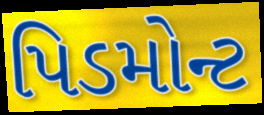
પિડમોન્ટ